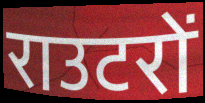
राउटरों